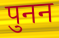
पुनन